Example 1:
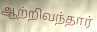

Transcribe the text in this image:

ஆற்றிவந்தார்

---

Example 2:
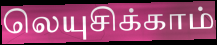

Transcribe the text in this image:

லெயுசிக்காம்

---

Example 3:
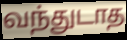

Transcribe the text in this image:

வந்துடாத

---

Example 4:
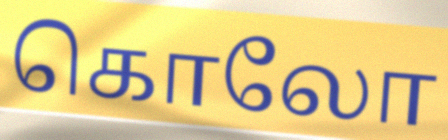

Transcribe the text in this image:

கொலோ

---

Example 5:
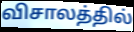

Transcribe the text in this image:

விசாலத்தில்